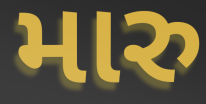
મારુ